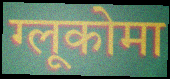
ग्‍लूकोमा